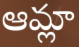
ఆమ్లా